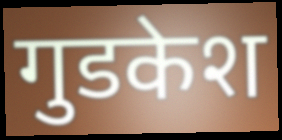
गुडकेश